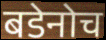
बडेनोच